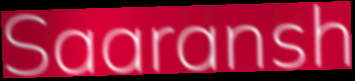
Saaransh